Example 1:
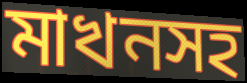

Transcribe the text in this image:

মাখনসহ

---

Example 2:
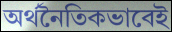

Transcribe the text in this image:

অর্থনৈতিকভাবেই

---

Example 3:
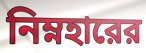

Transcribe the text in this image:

নিম্নহারের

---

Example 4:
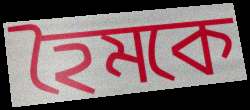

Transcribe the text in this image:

হৈমকে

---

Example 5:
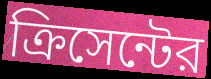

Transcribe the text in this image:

ক্রিসেন্টের